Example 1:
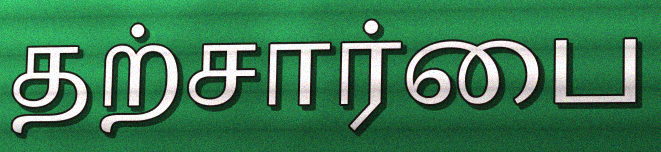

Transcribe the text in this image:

தற்சார்பை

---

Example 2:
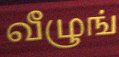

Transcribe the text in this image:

வீழுங்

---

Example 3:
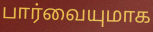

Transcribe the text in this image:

பார்வையுமாக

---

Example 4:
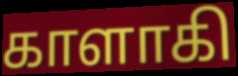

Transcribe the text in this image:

காளாகி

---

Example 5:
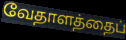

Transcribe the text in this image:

வேதாளத்தைப்